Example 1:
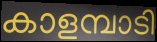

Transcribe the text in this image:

കാളമ്പാടി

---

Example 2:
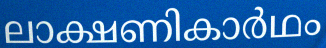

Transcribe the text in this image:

ലാക്ഷണികാർഥം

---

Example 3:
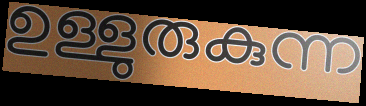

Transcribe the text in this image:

ഉള്ളുരുകുന്ന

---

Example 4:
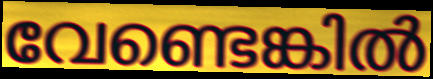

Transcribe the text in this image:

വേണ്ടെങ്കിൽ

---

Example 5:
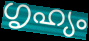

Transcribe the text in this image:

ഗൃഹ്യം